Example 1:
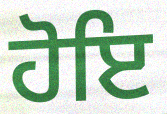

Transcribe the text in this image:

ਹੋਇ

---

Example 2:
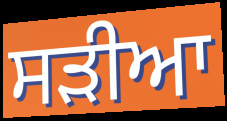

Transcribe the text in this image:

ਸੜੀਆ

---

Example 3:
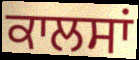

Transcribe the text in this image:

ਕਾਲਸਾਂ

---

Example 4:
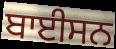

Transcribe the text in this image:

ਬਾਈਸਨ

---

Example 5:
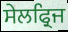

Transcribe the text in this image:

ਸੇਲਫ੍ਰਿਜ